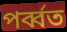
পৰ্ব্বত